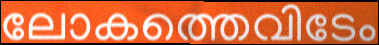
ലോകത്തെവിടേം